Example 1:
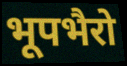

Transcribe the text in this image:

भूपभैरो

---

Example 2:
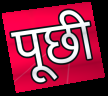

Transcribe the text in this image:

पूछी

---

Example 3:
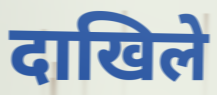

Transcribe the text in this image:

दाखिले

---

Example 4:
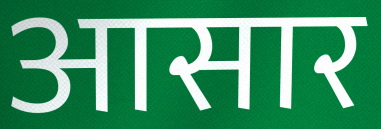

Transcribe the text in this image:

आसार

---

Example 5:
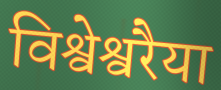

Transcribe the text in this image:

विश्वेश्वरैया